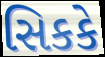
સિકકે